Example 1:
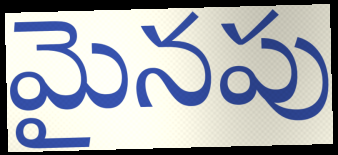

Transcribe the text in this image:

మైనపు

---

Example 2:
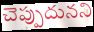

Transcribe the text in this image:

చెప్పుదునని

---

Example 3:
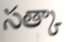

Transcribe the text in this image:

సత్కా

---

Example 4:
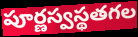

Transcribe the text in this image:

పూర్ణస్వస్థతగల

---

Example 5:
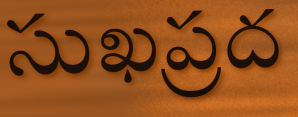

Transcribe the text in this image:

సుఖప్రద